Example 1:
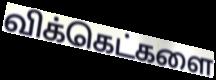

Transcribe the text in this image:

விக்கெட்களை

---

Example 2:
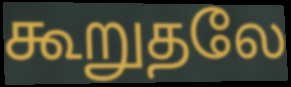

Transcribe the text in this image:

கூறுதலே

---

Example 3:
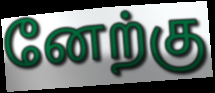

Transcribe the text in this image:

னேற்கு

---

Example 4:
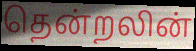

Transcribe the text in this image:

தென்றலின்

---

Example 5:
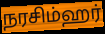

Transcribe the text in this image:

நரசிம்ஹர்